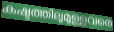
കഷ്ടത്തിലുമുള്ളവരെ